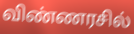
விண்ணரசில்